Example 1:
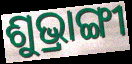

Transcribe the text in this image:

ଶୁଭ୍ରାଙ୍ଗୀ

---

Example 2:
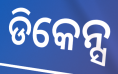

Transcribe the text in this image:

ଡିକେନ୍ସ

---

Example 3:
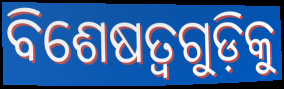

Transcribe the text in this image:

ବିଶେଷତ୍ୱଗୁଡ଼ିକୁ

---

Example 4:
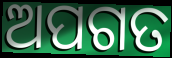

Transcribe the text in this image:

ଅପଗତ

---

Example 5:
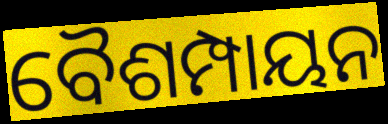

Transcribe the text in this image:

ବୈଶମ୍ପାୟନ